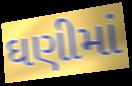
ઘણીમાં